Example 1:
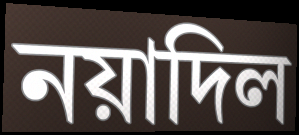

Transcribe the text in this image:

নয়াদিল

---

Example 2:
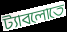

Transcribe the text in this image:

ট্যাবলোতে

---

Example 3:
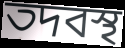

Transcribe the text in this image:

তদবস্থ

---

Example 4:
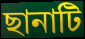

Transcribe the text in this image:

ছানাটি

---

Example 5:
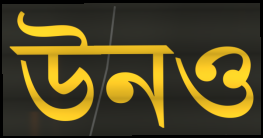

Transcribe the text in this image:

উনও